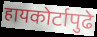
हायकोर्टापुढे